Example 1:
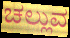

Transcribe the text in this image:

ಚಲ್ಲುವ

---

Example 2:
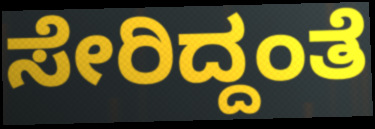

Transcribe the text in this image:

ಸೇರಿದ್ದಂತೆ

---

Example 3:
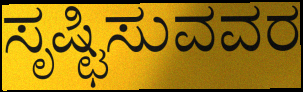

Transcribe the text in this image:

ಸೃಷ್ಟಿಸುವವರ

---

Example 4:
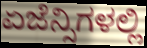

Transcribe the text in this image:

ಏಜೆನ್ಸಿಗಳಲ್ಲಿ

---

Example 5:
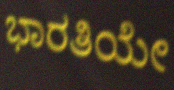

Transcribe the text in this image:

ಭಾರತಿಯೇ